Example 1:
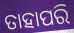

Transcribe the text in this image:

ତାହାପରି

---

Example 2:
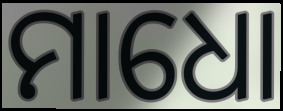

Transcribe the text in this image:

ମାଧୋ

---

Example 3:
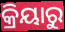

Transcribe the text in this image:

କ୍ରିୟାରୁ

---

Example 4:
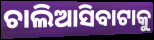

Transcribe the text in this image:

ଚାଲିଆସିବାଟାକୁ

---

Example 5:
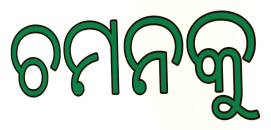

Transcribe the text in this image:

ଚମନକୁ